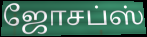
ஜோசப்ஸ்